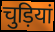
चुड़ियां